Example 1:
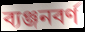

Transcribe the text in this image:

ব্যঞ্জনবৰ্ণ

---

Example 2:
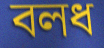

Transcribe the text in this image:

বলধ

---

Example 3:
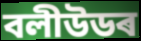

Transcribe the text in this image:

বলীউডৰ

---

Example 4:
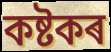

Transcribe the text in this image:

কষ্টকৰ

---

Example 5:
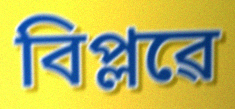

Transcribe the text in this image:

বিপ্লৱে